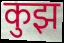
कुझ